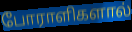
போராளிகளால்